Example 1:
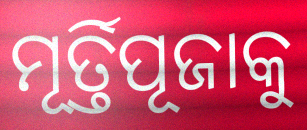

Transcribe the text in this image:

ମୂର୍ତ୍ତିପୂଜାକୁ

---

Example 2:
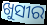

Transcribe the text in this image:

ଖୁସୀର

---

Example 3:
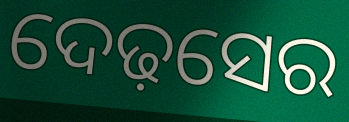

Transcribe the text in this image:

ଦେଢ଼ସେର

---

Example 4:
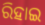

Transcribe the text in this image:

ରିହାଇ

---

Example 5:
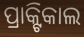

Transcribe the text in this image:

ପ୍ରାକ୍ଟିକାଲ